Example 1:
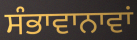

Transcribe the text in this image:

ਸੰਭਾਵਾਨਾਵਾਂ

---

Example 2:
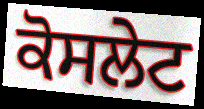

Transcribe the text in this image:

ਕੋਸਲੇਟ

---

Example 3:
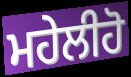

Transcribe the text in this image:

ਮਹੇਲੀਹੋ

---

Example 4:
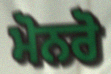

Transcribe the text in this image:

ਮੋਨਰੋ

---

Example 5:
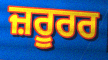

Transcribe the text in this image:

ਜ਼ਰੂਰਰ